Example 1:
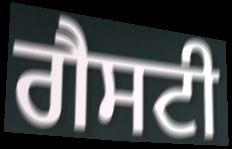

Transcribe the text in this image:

ਗੈਸਟੀ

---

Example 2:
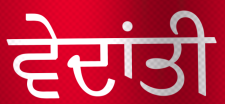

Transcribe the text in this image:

ਵੇਦਾਂਤੀ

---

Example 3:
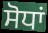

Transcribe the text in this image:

ਸੋਧਾਂ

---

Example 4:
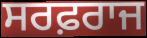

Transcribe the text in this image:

ਸਰਫ਼ਰਾਜ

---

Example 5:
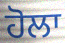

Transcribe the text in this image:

ਹੋਲਾ